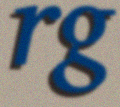
rg